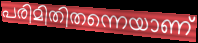
പരിമിതിതന്നെയാണ്